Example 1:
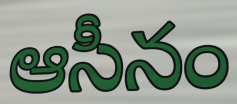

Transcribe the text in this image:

ఆసీనం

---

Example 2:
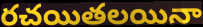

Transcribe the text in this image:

రచయితలయినా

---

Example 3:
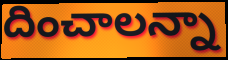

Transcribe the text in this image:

దించాలన్నా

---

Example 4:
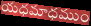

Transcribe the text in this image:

యధమాధముం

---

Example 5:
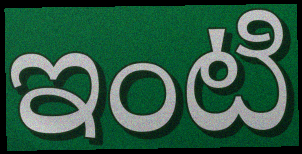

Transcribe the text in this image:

ఇంటి